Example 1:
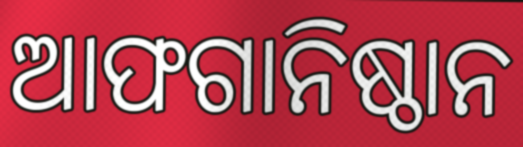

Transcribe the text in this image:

ଆଫଗାନିଷ୍ଠାନ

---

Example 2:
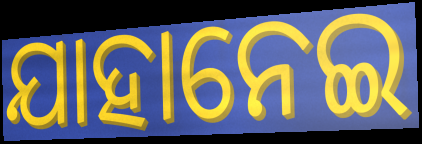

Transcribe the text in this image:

ଯାହାନେଇ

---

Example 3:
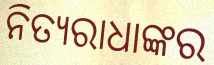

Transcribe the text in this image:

ନିତ୍ୟରାଧାଙ୍କର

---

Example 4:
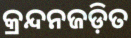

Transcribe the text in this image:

କ୍ରନ୍ଦନଜଡ଼ିତ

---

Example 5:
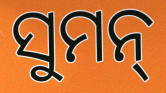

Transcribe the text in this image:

ସୁମନ୍